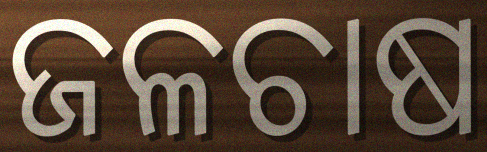
ଜଳଚାଷ